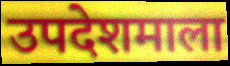
उपदेशमाला